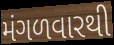
મંગળવારથી